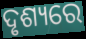
ଦୃଶ୍ୟରେ